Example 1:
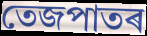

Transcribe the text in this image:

তেজপাতৰ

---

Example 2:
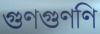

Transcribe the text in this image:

গুণগুণণি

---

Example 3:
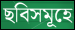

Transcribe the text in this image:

ছবিসমূহে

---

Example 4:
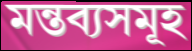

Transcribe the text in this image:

মন্তব্যসমূহ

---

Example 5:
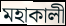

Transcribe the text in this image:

মহাকালী